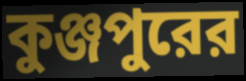
কুঞ্জপুরের